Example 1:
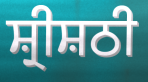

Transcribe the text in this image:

ਸ਼੍ਰੀਸ਼ਠੀ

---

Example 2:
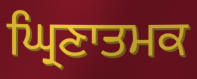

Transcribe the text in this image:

ਘ੍ਰਿਣਾਤਮਕ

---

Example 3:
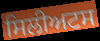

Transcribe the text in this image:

ਸਿਲੀਅਟਸ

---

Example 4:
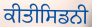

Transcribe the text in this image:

ਕੀਤੀਸਿਡਨੀ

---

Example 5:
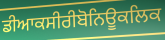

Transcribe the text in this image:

ਡੀਆਕਸੀਰੀਬੋਨਿਊਕਲਿਕ